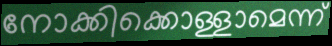
നോക്കിക്കൊള്ളാമെന്ന്